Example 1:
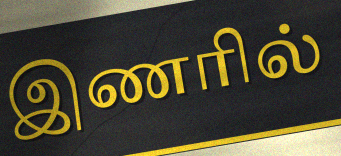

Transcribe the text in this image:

இணரில்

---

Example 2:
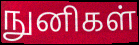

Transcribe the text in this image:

நுனிகள்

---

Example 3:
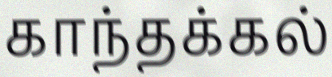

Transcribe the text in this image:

காந்தக்கல்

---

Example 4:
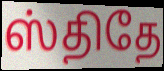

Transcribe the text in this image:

ஸ்திதே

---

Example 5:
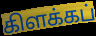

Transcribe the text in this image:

கிளக்கப்